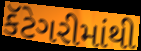
કૅટેગરીમાંથી